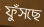
ফুঁসছে